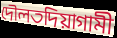
দৌলতদিয়াগামী